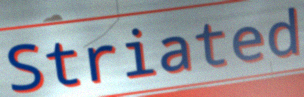
Striated